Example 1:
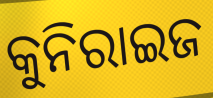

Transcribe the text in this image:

କୁନିରାଇଜ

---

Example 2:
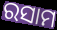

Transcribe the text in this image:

ରସାମ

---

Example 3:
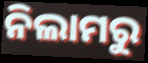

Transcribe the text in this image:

ନିଲାମରୁ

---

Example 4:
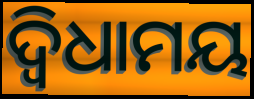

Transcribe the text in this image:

ଦ୍ୱିଧାମୟ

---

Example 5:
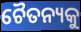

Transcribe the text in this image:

ଚୈତନ୍ୟକୁ